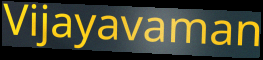
Vijayavaman